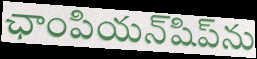
ఛాంపియన్‌షిప్‌ను